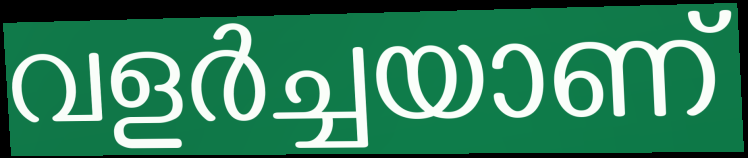
വളർച്ചയാണ്